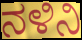
ನಳಿನಿ